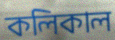
কলিকাল